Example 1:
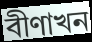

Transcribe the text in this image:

বীণাখন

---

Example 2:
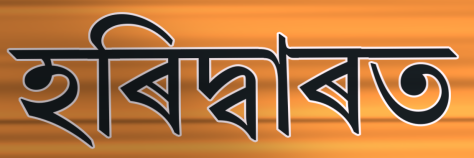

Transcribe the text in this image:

হৰিদ্বাৰত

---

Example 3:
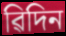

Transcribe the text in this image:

ৱিদিন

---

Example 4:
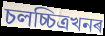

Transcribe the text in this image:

চলচ্চিত্ৰখনৰ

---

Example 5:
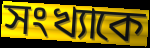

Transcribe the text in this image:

সংখ্যাকে